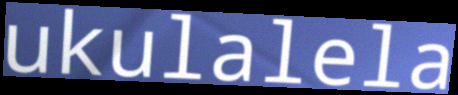
ukulalela